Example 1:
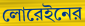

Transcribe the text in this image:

লোরেইনের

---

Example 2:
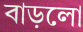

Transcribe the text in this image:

বাড়লো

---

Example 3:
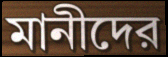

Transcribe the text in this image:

মানীদের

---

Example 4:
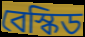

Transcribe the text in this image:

বেস্কিড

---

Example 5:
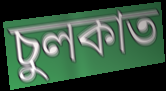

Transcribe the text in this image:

চুলকাত